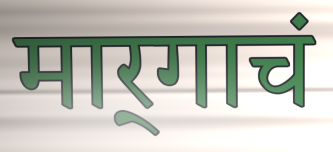
मार्गाचं